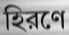
হিরণে